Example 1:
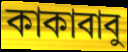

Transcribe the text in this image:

কাকাবাবু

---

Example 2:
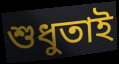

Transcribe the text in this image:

শুধুতাই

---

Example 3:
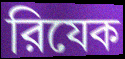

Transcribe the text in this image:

রিযেক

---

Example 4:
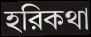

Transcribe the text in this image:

হরিকথা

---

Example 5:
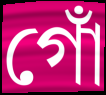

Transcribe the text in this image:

গোঁ